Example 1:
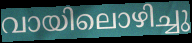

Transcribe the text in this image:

വായിലൊഴിച്ചു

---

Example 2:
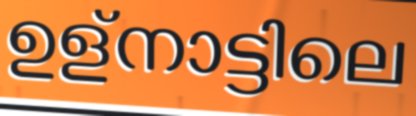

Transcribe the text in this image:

ഉള്നാട്ടിലെ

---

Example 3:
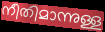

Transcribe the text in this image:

നീതിമാന്നുള്ള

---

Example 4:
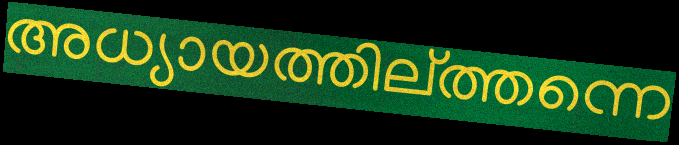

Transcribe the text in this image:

അധ്യായത്തില്ത്തന്നെ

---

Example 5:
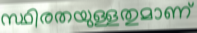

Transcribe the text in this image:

സ്ഥിരതയുള്ളതുമാണ്